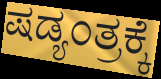
ಷಡ್ಯಂತ್ರಕ್ಕೆ